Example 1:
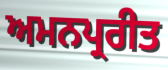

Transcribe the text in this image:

ਅਮਨਪ੍ਰਰੀਤ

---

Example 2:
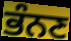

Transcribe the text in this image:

ਭੰਨਣ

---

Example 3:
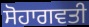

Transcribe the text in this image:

ਸੋਹਾਗਵਤੀ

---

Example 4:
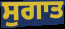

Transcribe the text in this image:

ਸੁਗਾਤ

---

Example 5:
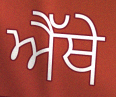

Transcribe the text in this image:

ਐੱਥੇ